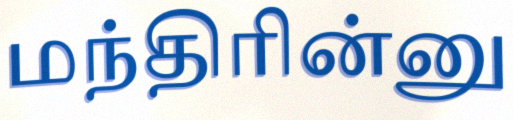
மந்திரின்னு